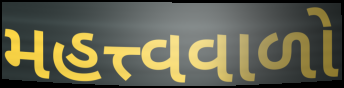
મહત્ત્વવાળો